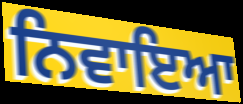
ਨਿਵਾਇਆ